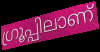
ഗ്രൂപ്പിലാണ്